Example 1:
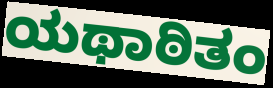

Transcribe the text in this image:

ಯಥಾಠಿತಂ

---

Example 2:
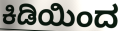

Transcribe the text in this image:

ಕಿಡಿಯಿಂದ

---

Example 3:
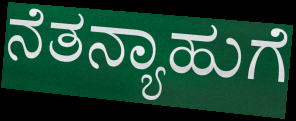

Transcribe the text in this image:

ನೆತನ್ಯಾಹುಗೆ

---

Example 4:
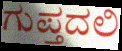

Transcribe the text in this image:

ಗುಪ್ತದಲಿ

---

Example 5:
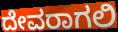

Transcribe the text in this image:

ದೇವರಾಗಲಿ